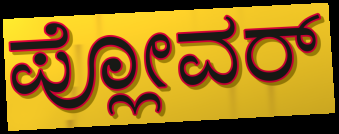
ಪ್ಲೋವರ್